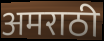
अमराठी